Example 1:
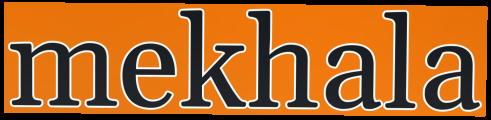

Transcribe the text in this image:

mekhala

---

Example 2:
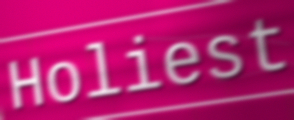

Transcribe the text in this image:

Holiest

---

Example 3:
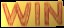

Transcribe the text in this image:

WIN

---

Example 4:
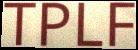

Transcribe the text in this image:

TPLF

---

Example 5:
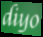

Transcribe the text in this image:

diyo